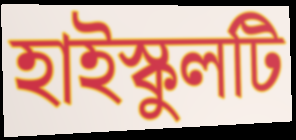
হাইস্কুলটি